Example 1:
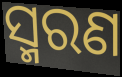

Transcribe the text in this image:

ସ୍ମରଣ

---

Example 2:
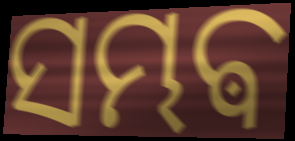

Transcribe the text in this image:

ସମ୍ଭଵ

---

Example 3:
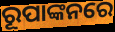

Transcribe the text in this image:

ରୂପାଙ୍କନରେ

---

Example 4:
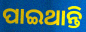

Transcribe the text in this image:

ପାଇଥାନ୍ତି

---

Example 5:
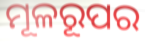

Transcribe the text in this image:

ମୂଳରୂପର